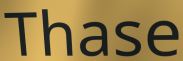
Thase